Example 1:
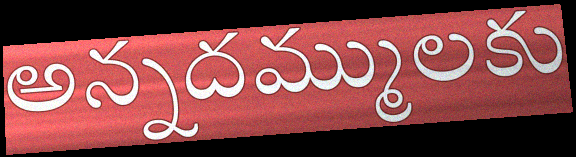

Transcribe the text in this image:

అన్నదమ్ములకు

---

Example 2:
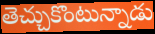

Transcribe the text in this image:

తెచ్చుకొంటున్నాడు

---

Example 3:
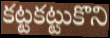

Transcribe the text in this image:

కట్టకట్టుకొని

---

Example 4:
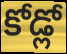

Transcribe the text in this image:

కోడ్లో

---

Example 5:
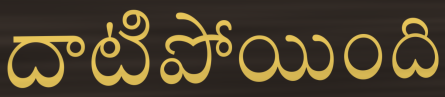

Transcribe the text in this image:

దాటిపోయింది